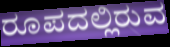
ರೂಪದಲ್ಲಿರುವ